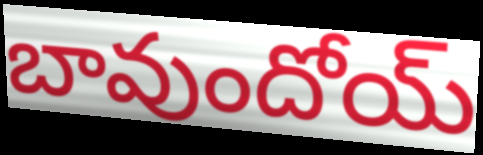
బావుందోయ్